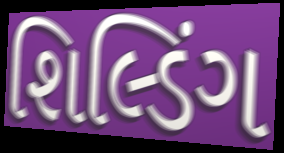
શિલ્ડિંગ